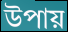
উপায়